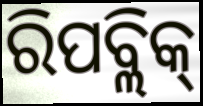
ରିପବ୍ଲିକ୍